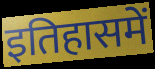
इतिहासमें